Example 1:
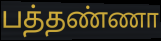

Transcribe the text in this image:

பத்தண்ணா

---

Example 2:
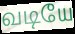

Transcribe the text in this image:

வடியே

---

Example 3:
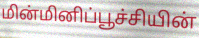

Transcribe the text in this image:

மின்மினிப்பூச்சியின்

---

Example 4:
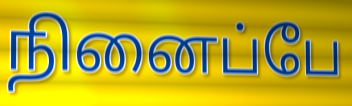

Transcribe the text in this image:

நினைப்பே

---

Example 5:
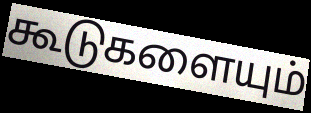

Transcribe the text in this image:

கூடுகளையும்